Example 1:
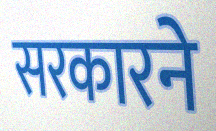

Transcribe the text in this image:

सरकारने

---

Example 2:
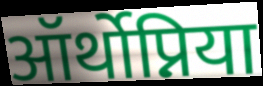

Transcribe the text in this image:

ऑर्थोप्निया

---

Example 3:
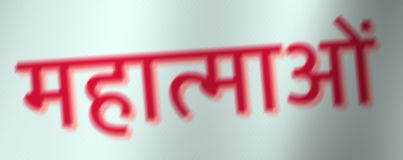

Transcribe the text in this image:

महात्माओं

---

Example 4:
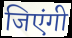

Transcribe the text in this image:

जिएंगी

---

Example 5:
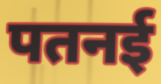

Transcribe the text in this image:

पतनई